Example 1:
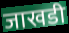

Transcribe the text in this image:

जाखडी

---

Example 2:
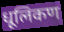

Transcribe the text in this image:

धूलिकण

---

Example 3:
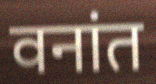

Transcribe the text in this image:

वनांत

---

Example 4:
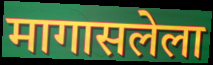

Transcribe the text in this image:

मागासलेला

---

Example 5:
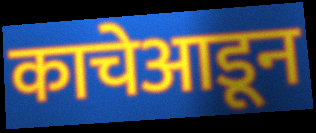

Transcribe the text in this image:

काचेआडून